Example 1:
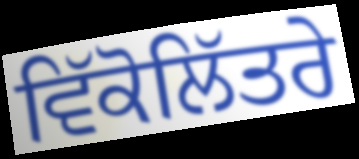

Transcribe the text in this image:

ਵਿੱਕੋਲਿੱਤਰੇ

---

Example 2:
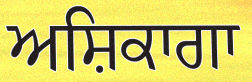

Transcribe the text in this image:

ਅਸ਼ਿਕਾਗਾ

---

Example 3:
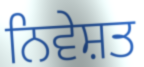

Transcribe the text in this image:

ਨਿਵੇਸ਼ਤ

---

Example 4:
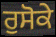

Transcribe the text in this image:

ਰੁਸੋਕੇ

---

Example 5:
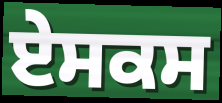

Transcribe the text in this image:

ਏਸਕਸ